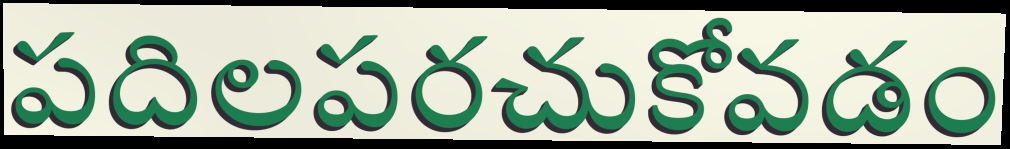
పదిలపరచుకోవడం